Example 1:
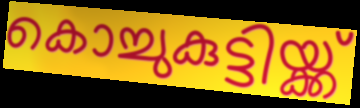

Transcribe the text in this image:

കൊച്ചുകുട്ടിയ്ക്ക്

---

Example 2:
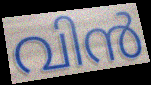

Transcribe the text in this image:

വിൻ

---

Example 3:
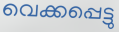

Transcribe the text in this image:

വെക്കപ്പെട്ടു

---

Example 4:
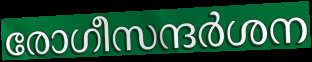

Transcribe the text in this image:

രോഗീസന്ദർശന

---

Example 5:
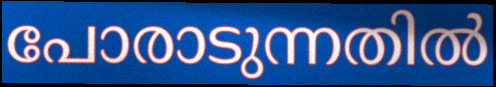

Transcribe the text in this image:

പോരാടുന്നതിൽ